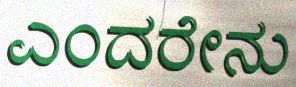
ಎಂದರೇನು